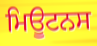
ਮਿਊਟਨਸ